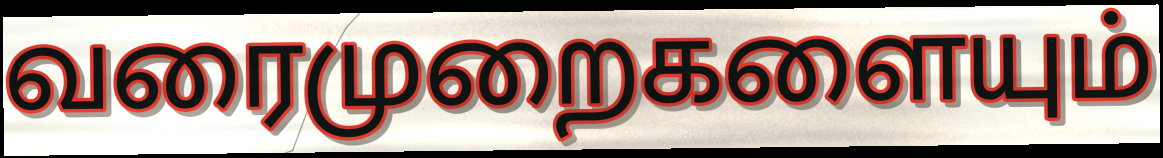
வரைமுறைகளையும்